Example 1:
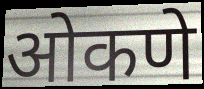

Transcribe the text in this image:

ओकणे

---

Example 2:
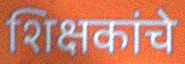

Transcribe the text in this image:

शिक्षकांचे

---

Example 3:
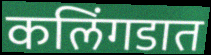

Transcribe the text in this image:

कलिंगडात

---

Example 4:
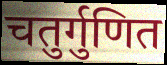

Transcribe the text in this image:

चतुर्गुणित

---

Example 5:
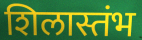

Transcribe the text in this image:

शिलास्तंभ